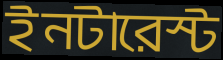
ইনটারেস্ট